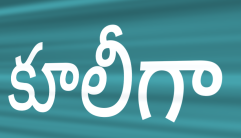
కూలీగా